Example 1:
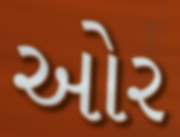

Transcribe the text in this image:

ઓર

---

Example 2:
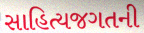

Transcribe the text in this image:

સાહિત્યજગતની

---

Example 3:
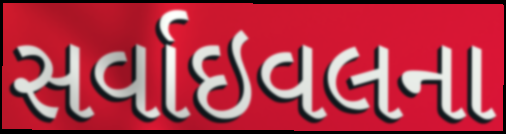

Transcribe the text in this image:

સર્વાઇવલના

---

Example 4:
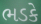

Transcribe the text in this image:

ભડકે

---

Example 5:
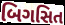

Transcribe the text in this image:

બિગસિત